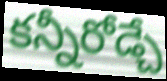
కన్నీరోడ్చే